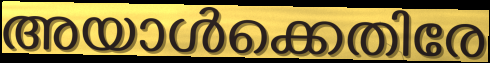
അയാൾക്കെതിരേ